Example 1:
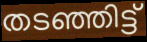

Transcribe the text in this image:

തടഞ്ഞിട്ട്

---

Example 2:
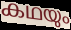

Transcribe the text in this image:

കഥയും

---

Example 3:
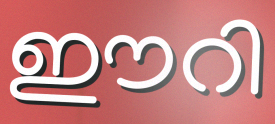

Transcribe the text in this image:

ഈറി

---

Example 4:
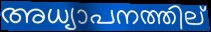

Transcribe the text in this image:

അധ്യാപനത്തില്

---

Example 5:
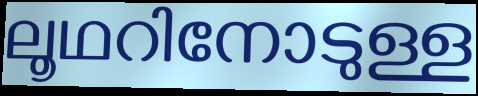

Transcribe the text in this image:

ലൂഥറിനോടുള്ള